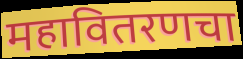
महावितरणचा